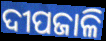
ଦୀପଜାଳି